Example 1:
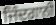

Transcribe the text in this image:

ਜਿੰਦਗਾਨੀ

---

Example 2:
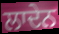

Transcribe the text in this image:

ਲਾਦੇਨ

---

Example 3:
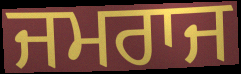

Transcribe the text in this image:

ਜਮਰਾਜ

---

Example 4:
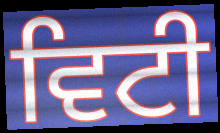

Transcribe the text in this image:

ਵਿਟੀ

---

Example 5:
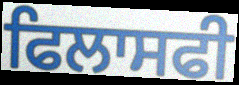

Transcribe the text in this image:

ਫਿਲਾਸਫੀ